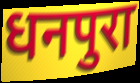
धनपुरा